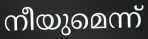
നീയുമെന്ന്